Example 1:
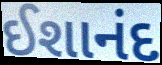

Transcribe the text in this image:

ઈશાનંદ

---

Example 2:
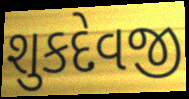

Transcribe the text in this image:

શુકદેવજી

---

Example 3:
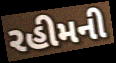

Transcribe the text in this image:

રહીમની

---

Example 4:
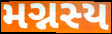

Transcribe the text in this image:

મગ્નસ્ય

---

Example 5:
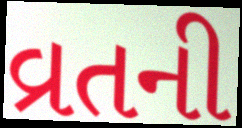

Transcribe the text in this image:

વ્રતની